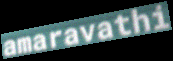
amaravathi